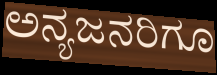
ಅನ್ಯಜನರಿಗೂ